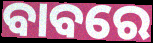
ବାବରେ